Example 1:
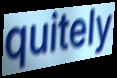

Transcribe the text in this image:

quitely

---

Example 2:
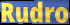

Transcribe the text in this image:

Rudro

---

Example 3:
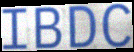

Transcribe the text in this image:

IBDC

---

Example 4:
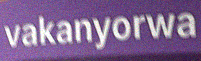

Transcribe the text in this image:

vakanyorwa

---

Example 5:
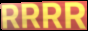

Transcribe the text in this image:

RRRR